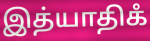
இத்யாதிகஂ